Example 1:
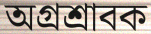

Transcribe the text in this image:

অগ্রশ্রাবক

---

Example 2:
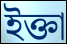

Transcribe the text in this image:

ইক্তা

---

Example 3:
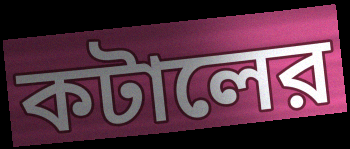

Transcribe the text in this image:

কটালের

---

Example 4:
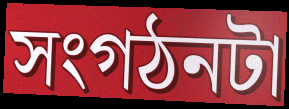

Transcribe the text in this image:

সংগঠনটা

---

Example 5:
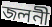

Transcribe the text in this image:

জলনী